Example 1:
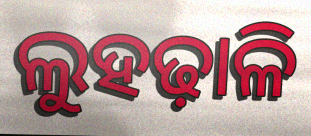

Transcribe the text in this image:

ଲୁହଢ଼ାଳି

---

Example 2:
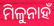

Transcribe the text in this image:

ମିଳୁନାହଁ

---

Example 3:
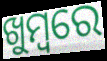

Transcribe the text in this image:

ଖୁମ୍ବରେ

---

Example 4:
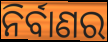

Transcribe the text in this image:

ନିର୍ବାଣର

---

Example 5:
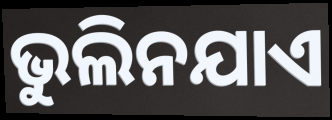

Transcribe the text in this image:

ଭୁଲିନଯାଏ